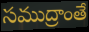
సముద్రాంతే